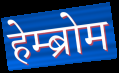
हेम्ब्रोम